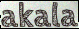
akala